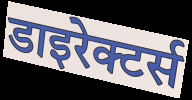
डाइरेक्टर्स